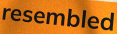
resembled